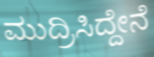
ಮುದ್ರಿಸಿದ್ದೇನೆ